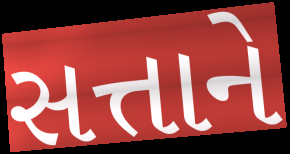
સત્તાને